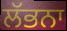
ਲੱਭਨਾ